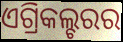
ଏଗ୍ରିକଲ୍ଚରର